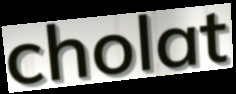
cholat